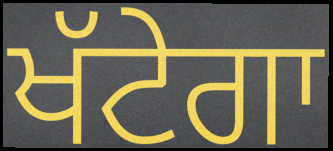
ਖੱਟੇਗਾ